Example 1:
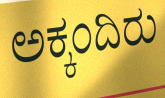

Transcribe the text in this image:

ಅಕ್ಕಂದಿರು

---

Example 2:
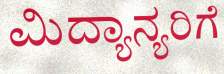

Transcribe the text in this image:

ಮಿದ್ಯಾನ್ಯರಿಗೆ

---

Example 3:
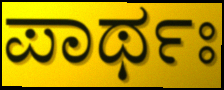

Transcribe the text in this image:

ಪಾರ್ಥಃ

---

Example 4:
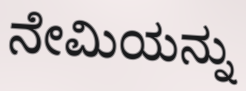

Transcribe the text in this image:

ನೇಮಿಯನ್ನು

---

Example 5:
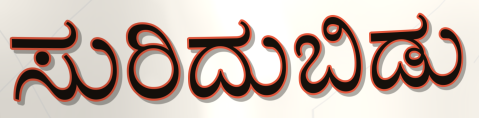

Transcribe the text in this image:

ಸುರಿದುಬಿಡು